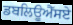
ਡਬਲਿਊਐੱਸਏ